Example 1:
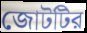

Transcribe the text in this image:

জোটটির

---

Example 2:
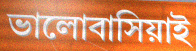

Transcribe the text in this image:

ভালোবাসিয়াই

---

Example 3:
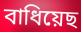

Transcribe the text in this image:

বাধিয়েছ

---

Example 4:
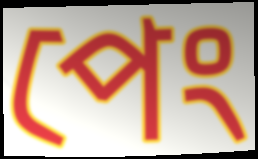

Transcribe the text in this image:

পেং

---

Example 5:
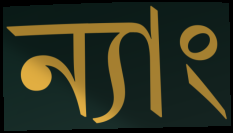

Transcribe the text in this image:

ন্যাং